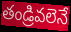
తండ్రివలెనే